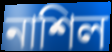
নাশিল